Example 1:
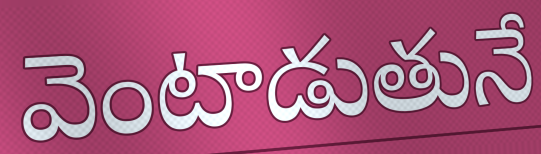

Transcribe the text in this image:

వెంటాడుతునే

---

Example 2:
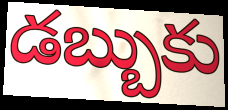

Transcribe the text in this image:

డబ్బుకు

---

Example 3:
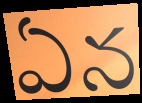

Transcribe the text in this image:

ఏన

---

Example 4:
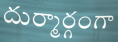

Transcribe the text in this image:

దుర్మార్గంగా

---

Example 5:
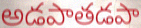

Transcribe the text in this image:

అడపాతడపా